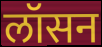
लॉसन